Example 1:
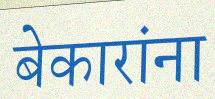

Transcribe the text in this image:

बेकारांना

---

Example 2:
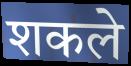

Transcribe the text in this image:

शकले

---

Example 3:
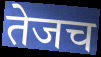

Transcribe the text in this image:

तेजच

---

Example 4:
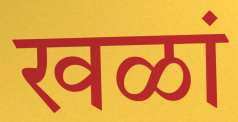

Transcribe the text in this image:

खळां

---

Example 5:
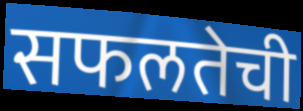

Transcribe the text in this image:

सफलतेची